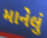
માનેલું